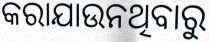
କରାଯାଉନଥିବାରୁ